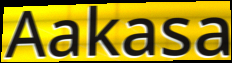
Aakasa